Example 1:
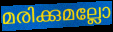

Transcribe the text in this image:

മരിക്കുമല്ലോ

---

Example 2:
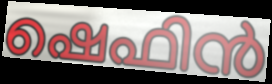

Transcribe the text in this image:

ഷെഫിൻ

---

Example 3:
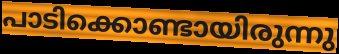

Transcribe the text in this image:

പാടിക്കൊണ്ടായിരുന്നു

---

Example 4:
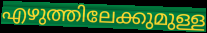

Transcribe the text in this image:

എഴുത്തിലേക്കുമുള്ള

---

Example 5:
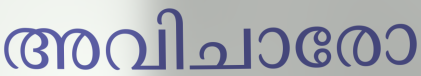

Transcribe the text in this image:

അവിചാരോ